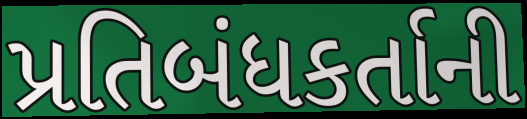
પ્રતિબંધકર્તાની